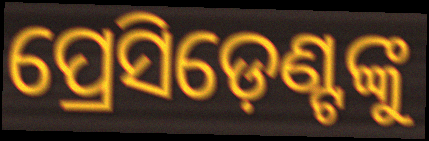
ପ୍ରେସିଡ଼େଣ୍ଟଙ୍କୁ